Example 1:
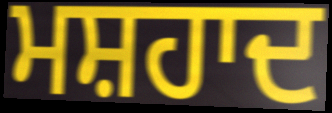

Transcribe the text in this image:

ਮਸ਼ਹਾਦ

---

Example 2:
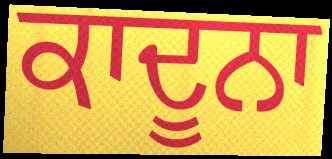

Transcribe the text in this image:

ਕਾਦੂਨਾ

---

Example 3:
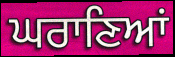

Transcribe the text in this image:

ਘਰਾਣਿਆਂ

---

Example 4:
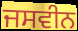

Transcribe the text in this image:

ਜਸਵੀਨ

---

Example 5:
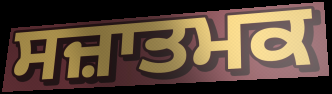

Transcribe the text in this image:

ਸਜ਼ਾਤਮਕ